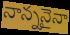
నాన్ననైనా